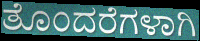
ತೊಂದರೆಗಳಾಗಿ